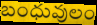
బంధువులం